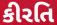
કીરતિ